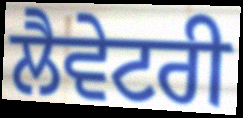
ਲੈਵੇਟਰੀ